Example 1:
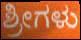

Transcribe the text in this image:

ಶ್ರೀಗಳು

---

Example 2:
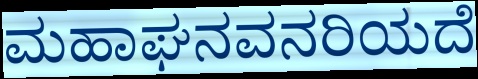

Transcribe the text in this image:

ಮಹಾಘನವನರಿಯದೆ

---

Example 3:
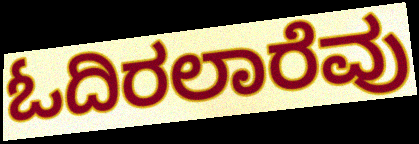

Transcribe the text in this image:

ಓದಿರಲಾರೆವು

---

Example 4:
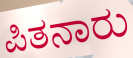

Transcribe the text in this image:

ಪಿತನಾರು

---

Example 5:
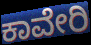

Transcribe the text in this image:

ಕಾವೇರಿ